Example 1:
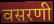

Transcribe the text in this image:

वसरणी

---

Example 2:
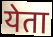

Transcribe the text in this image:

येता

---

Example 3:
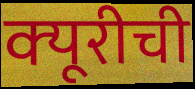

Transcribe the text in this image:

क्यूरीची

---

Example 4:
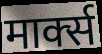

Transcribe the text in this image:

मार्क्‍स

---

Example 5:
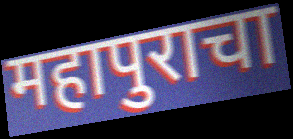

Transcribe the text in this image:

महापुराचा